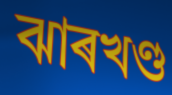
ঝাৰখণ্ড